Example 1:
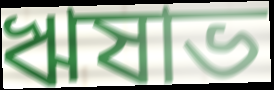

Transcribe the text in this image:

ঋষাভ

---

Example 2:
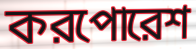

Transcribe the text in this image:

করপোরেশ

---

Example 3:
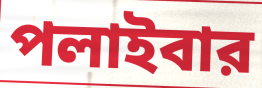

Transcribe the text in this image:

পলাইবার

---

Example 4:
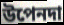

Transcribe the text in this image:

উপেনদা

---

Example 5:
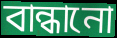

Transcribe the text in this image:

বান্ধানো